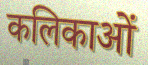
कलिकाओं